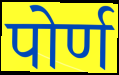
पोर्ण